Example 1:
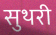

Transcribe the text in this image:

सुथरी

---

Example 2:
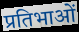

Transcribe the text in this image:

प्रतिभाओं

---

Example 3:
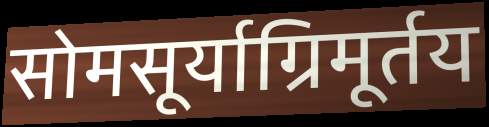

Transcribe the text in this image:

सोमसूर्याग्रिमूर्तय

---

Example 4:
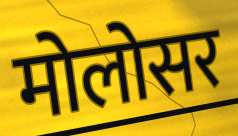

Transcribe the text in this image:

मोलोसर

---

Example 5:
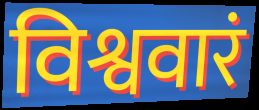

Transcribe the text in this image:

विश्ववारं